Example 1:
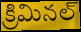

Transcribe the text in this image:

క్రిమినల్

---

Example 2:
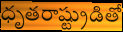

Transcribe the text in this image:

ధృతరాష్ట్రుడితో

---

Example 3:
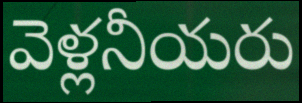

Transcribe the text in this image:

వెళ్లనీయరు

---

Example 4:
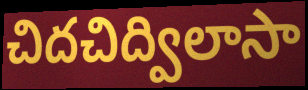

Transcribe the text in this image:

చిదచిద్విలాసా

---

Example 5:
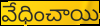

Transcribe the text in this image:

వేధించాయి